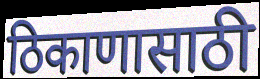
ठिकाणासाठी